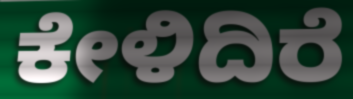
ಕೇಳಿದಿರೆ